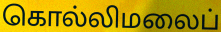
கொல்லிமலைப்